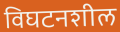
विघटनशील